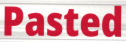
Pasted